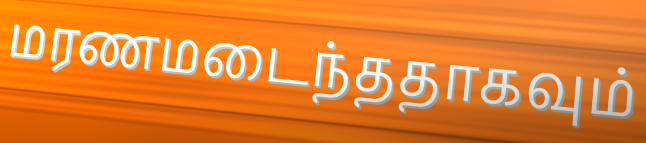
மரணமடைந்ததாகவும்